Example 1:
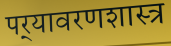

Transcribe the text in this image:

पर्यावरणशास्त्र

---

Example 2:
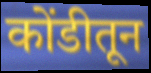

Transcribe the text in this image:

कोंडीतून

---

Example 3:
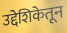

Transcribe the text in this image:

उद्देशिकेतून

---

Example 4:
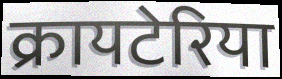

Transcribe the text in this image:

क्रायटेरिया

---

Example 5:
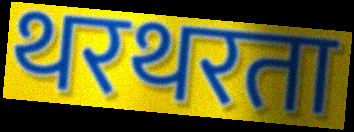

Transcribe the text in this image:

थरथरता